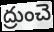
ద్రుంచె